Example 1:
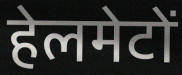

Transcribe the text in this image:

हेलमेटों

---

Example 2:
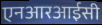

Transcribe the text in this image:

एनआरआईसी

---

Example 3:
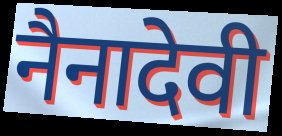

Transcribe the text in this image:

नैनादेवी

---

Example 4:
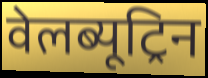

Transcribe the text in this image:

वेलब्यूट्रिन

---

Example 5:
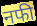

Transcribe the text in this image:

नफी